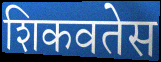
शिकवतेस